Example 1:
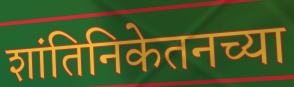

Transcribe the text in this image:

शांतिनिकेतनच्या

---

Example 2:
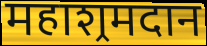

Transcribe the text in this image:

महाश्रमदान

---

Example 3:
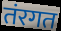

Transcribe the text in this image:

तंरगत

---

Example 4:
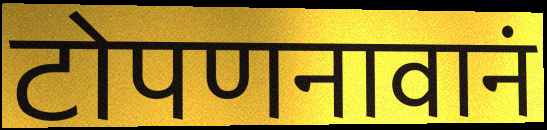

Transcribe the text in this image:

टोपणनावानं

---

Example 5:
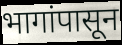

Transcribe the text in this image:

भागांपासून